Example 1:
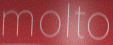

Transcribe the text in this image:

molto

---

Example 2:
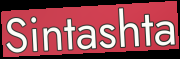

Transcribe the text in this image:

Sintashta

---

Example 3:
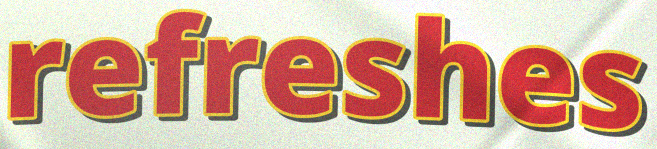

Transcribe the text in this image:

refreshes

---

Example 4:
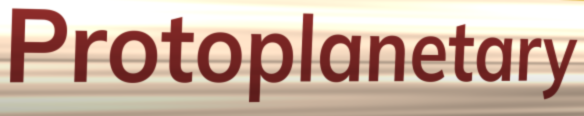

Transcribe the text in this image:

Protoplanetary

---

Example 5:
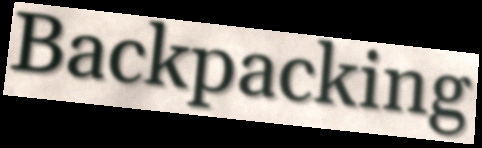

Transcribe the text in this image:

Backpacking